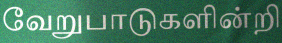
வேறுபாடுகளின்றி